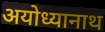
अयोध्यानाथ